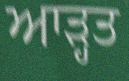
ਆੜ੍ਹਤ